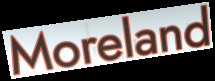
Moreland